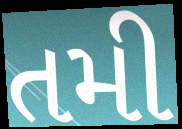
તમી